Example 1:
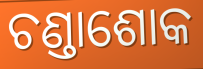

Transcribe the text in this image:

ଚଣ୍ଡାଶୋକ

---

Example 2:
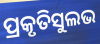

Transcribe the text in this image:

ପ୍ରକୃତିସୁଲଭ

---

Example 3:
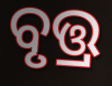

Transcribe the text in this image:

ବୃତ୍ତ୍ର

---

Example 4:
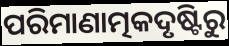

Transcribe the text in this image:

ପରିମାଣାତ୍ମକଦୃଷ୍ଟିରୁ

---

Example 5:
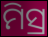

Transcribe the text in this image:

ମିସ୍ର